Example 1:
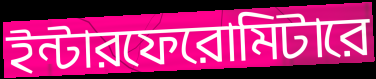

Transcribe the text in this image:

ইন্টারফেরোমিটারে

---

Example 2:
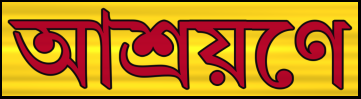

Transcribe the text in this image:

আশ্রয়ণে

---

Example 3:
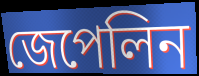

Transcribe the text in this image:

জেপেলিন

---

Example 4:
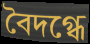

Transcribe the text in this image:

বৈদগ্ধে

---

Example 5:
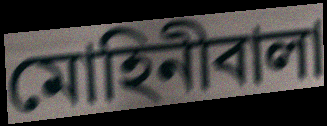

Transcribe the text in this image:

মোহিনীবালা